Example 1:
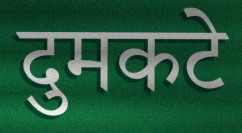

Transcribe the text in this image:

दुमकटे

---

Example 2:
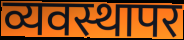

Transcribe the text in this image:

व्यवस्थापर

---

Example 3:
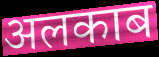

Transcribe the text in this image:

अलकाब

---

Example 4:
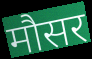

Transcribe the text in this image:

मौसर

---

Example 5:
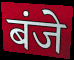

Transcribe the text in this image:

बंजे